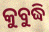
କୁବୁଦ୍ଧି